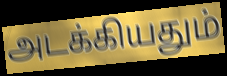
அடக்கியதும்